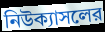
নিউক্যাসলের